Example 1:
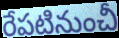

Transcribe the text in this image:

రేపటినుంచీ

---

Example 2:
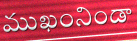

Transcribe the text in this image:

ముఖంనిండా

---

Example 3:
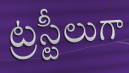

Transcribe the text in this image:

ట్రస్టీలుగా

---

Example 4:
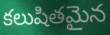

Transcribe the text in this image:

కలుషితమైన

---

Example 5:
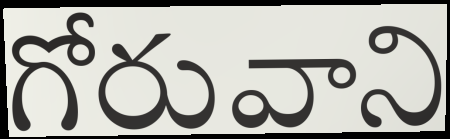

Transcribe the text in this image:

గోరువాని